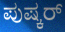
ಪುಷ್ಕರ್